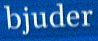
bjuder